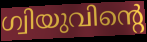
ഗ്വിയുവിന്റെ